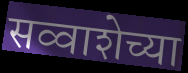
सव्वाशेच्या